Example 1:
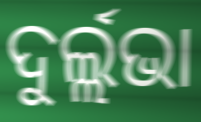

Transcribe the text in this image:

ଦୁର୍ଲ୍ଲଭା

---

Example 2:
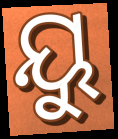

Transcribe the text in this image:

ୟୁ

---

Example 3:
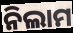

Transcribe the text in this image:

ନିଲାମ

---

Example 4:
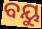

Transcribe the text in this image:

ବୟୁ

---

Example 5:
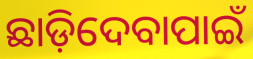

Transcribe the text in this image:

ଛାଡ଼ିଦେବାପାଇଁ